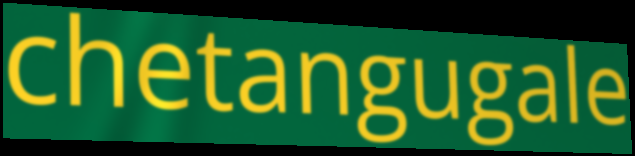
chetangugale